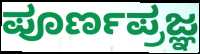
ಪೂರ್ಣಪ್ರಜ್ಞ